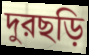
দুরছড়ি